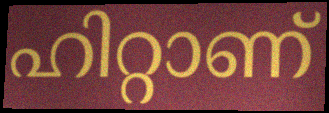
ഹിറ്റാണ്